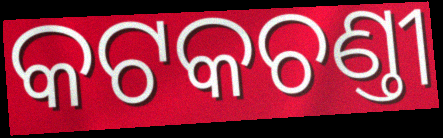
କଟକଚଣ୍ତୀ